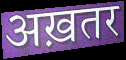
अख़तर